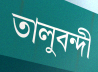
তালুবন্দী